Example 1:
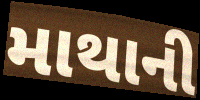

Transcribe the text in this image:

માથાની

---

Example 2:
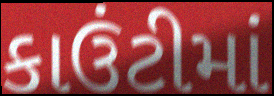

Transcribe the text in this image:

કાઉંટીમાં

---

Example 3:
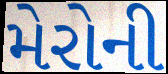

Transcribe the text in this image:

મેરોની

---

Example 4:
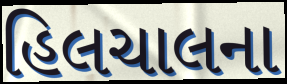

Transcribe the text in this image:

હિલચાલના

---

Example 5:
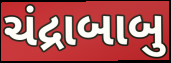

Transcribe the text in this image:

ચંદ્રાબાબુ